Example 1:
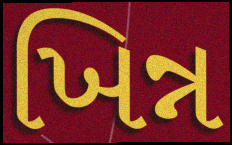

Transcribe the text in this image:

ખિન્ન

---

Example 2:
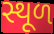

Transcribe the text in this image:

સ્થૂળ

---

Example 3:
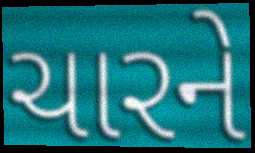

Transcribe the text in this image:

ચારને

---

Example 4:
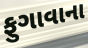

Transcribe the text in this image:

ફુગાવાના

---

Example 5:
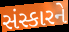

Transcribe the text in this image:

સંસ્કારને